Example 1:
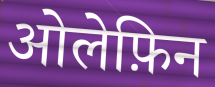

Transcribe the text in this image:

ओलेफ़िन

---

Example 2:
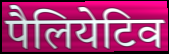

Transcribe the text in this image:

पैलियेटिव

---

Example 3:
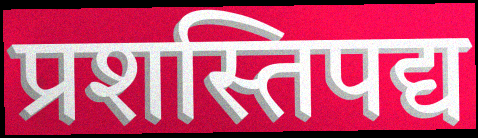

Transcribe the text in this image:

प्रशस्तिपद्य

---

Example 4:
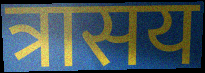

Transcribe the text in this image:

त्रासय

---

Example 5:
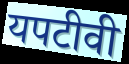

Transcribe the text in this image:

यपटीवी